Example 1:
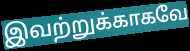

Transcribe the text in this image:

இவற்றுக்காகவே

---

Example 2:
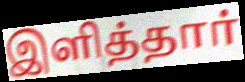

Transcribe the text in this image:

இளித்தார்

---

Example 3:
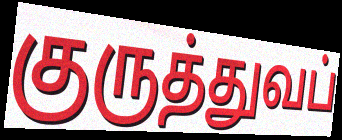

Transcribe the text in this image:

குருத்துவப்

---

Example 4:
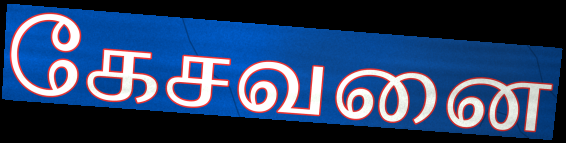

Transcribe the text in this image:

கேசவனை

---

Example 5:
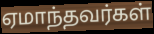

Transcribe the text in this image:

ஏமாந்தவர்கள்